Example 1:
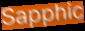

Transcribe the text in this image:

Sapphic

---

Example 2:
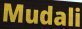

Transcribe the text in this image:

Mudali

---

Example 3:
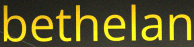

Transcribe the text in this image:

bethelan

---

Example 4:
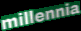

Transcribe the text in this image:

millennia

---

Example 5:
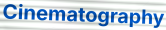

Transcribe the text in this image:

Cinematography